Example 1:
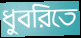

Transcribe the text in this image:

ধুবরিতে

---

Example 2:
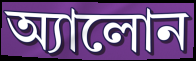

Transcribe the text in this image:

অ্যালোন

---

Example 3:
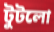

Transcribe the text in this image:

টুটলো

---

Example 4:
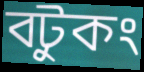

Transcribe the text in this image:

বটুকং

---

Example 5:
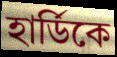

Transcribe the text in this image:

হার্ডিকে